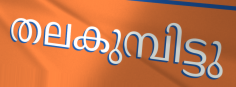
തലകുമ്പിട്ടു